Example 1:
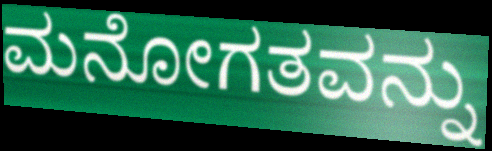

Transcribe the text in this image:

ಮನೋಗತವನ್ನು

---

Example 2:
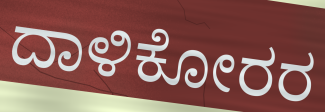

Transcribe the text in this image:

ದಾಳಿಕೋರರ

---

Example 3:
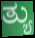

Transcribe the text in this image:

ತ್ಯು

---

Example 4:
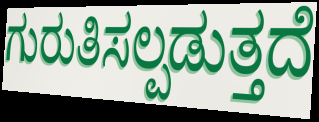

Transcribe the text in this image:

ಗುರುತಿಸಲ್ಪಡುತ್ತದೆ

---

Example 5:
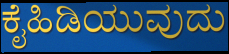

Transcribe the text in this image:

ಕೈಹಿಡಿಯುವುದು